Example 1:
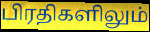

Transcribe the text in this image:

பிரதிகளிலும்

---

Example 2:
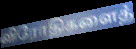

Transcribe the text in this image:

விரோதிகளைத்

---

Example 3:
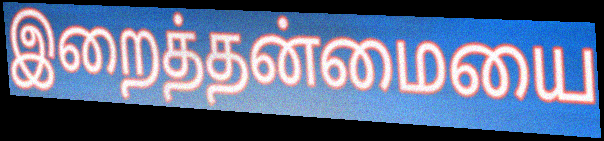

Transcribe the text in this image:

இறைத்தன்மையை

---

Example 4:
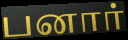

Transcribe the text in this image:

பனார்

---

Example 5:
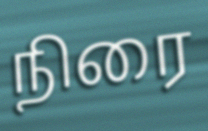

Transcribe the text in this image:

நிரை